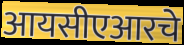
आयसीएआरचे